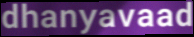
dhanyavaad